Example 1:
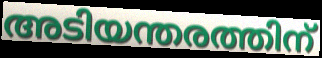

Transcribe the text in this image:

അടിയന്തരത്തിന്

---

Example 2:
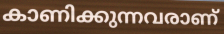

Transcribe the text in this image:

കാണിക്കുന്നവരാണ്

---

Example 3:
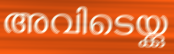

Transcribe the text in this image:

അവിടെയ്ക്കു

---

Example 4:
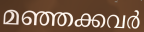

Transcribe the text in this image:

മഞ്ഞക്കവർ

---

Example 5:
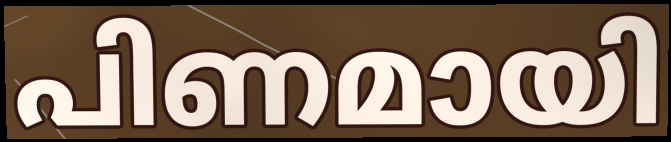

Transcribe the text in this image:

പിണമായി